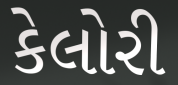
કેલોરી